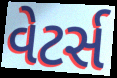
વેટર્સ